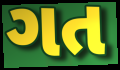
ગત